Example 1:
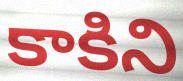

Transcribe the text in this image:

కాకిని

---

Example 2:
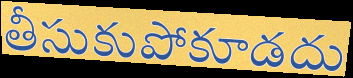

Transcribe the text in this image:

తీసుకుపోకూడదు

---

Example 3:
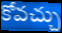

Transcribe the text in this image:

కోవచ్చు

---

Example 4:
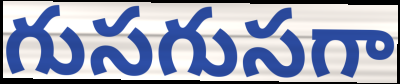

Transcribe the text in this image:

గుసగుసగా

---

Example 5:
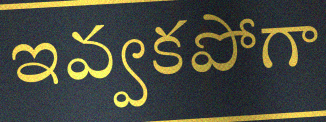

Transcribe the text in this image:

ఇవ్వకపోగా